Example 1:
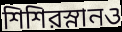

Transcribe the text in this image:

শিশিরস্নানও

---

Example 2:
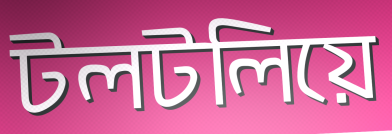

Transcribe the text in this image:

টলটলিয়ে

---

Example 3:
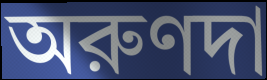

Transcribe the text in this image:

অরুণদা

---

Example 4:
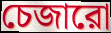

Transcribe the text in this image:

চেজারো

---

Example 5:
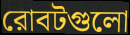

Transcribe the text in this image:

রোবটগুলো